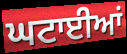
ਘਟਾਈਆਂ